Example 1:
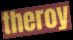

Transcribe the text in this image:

theroy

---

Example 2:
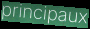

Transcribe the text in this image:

principaux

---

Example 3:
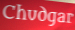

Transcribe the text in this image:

Chudgar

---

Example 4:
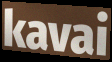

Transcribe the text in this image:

kavai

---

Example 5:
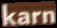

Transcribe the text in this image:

karn